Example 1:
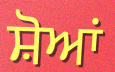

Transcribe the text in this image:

ਸ਼ੋਆਂ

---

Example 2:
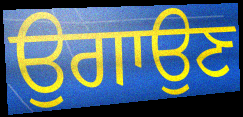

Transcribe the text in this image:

ਉਗਾਉਣ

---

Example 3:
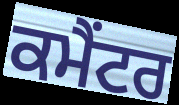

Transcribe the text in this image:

ਕਮੈਂਟਰ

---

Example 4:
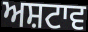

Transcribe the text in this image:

ਅਸ਼ਟਾਵ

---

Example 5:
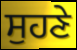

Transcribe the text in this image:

ਸੁਹਣੇ